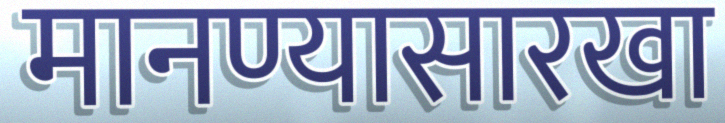
मानण्यासारखा